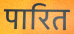
पारित